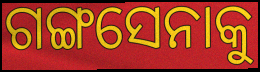
ଗଙ୍ଗସେନାକୁ